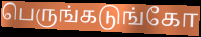
பெருங்கடுங்கோ